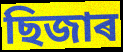
ছিজাৰ